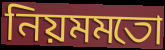
নিয়মমতো